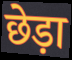
छेड़ा